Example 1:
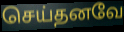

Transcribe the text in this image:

செய்தனவே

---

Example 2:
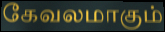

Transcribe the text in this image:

கேவலமாகும்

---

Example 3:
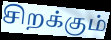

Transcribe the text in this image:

சிறக்கும்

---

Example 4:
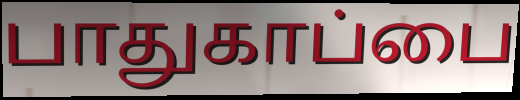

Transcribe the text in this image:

பாதுகாப்பை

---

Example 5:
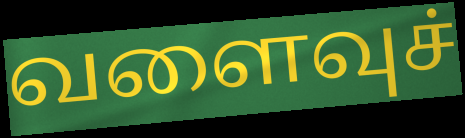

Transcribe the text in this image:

வளைவுச்